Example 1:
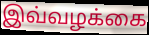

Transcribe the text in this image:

இவ்வழக்கை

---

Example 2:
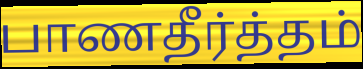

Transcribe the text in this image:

பாணதீர்த்தம்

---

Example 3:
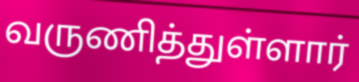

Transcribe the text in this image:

வருணித்துள்ளார்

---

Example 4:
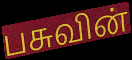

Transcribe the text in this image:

பசுவின்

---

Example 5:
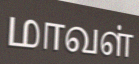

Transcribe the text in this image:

மாவள்